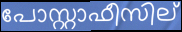
പോസ്റ്റാഫീസില്